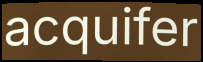
acquifer